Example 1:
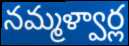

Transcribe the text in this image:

నమ్మళ్వార్ల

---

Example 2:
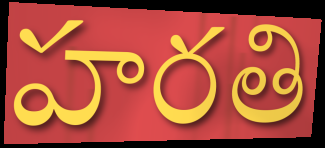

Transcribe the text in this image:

హరతి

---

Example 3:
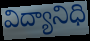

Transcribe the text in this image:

విద్యానిధి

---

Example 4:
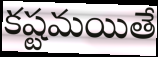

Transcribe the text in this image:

కష్టమయితే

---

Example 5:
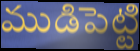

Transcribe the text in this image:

ముడిపెట్టి